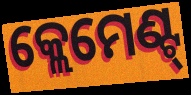
କ୍ଲେମେଣ୍ଟ୍